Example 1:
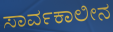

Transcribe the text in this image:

ಸಾರ್ವಕಾಲೀನ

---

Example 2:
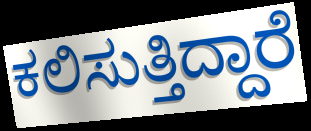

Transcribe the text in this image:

ಕಲಿಸುತ್ತಿದ್ದಾರೆ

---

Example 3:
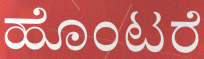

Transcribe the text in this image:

ಹೊಂಟರೆ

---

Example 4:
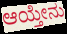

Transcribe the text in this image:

ಆಯ್ತೇನು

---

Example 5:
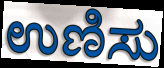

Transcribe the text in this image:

ಉಣಿಸು